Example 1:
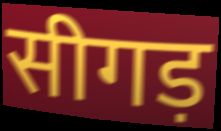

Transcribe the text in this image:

सीगड़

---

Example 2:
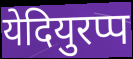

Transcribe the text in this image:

येदियुरप्प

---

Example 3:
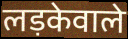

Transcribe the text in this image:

लड़केवाले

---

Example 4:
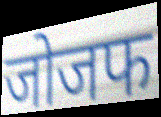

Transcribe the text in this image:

जोजफ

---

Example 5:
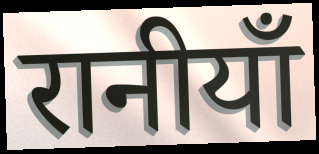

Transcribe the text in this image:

रानीयाँ